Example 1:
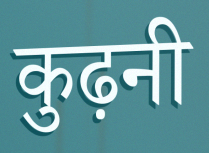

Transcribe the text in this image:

कुढ़नी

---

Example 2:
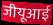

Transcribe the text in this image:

जीयूआई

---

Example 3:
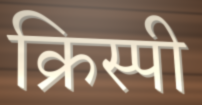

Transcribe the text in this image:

क्रिस्पी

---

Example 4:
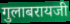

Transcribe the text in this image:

गुलाबरायजी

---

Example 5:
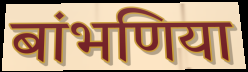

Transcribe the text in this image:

बांभणिया